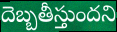
దెబ్బతీస్తుందని